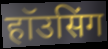
हॉउसिंग